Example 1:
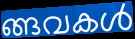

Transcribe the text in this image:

ങ്ങവകൾ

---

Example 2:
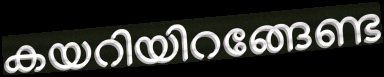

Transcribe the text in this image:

കയറിയിറങ്ങേണ്ട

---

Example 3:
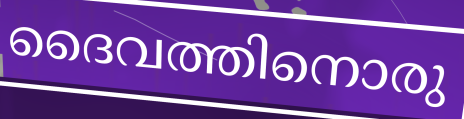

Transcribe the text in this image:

ദൈവത്തിനൊരു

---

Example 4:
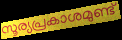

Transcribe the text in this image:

സൂര്യപ്രകാശമുണ്ട്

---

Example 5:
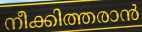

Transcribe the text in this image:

നീക്കിത്തരാൻ